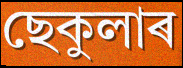
ছেকুলাৰ